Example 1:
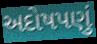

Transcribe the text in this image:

અદોષપણું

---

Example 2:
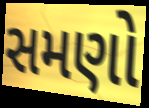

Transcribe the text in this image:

સમણો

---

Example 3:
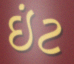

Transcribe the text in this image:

ઇંટ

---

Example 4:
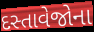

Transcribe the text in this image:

દસ્તાવેજોના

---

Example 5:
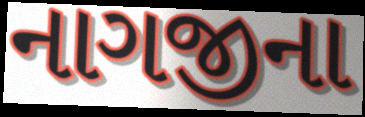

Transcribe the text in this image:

નાગજીના